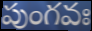
పుంగవః